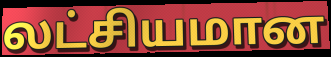
லட்சியமான